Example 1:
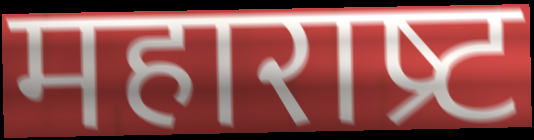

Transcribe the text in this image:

महाराष्र्ट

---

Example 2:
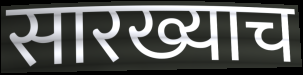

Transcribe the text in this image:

सारख्याच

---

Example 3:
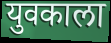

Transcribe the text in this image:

युवकाला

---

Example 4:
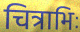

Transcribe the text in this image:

चित्राभिः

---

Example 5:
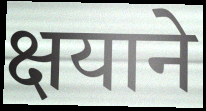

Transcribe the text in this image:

क्षयाने